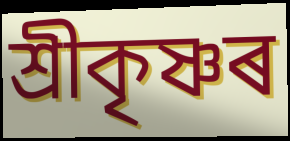
শ্ৰীকৃষ্ণৰ